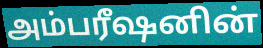
அம்பரீஷனின்